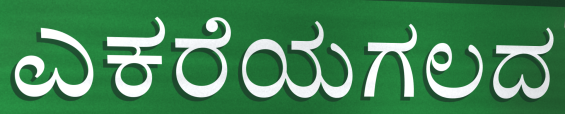
ಎಕರೆಯಗಲದ